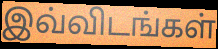
இவ்விடங்கள்